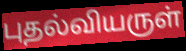
புதல்வியருள்